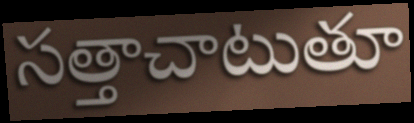
సత్తాచాటుతూ